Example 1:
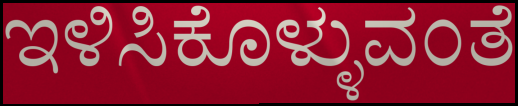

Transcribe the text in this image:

ಇಳಿಸಿಕೊಳ್ಳುವಂತೆ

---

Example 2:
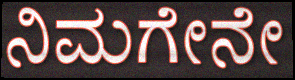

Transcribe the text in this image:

ನಿಮಗೇನೇ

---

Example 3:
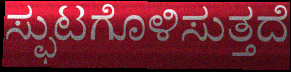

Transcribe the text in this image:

ಸ್ಫುಟಗೊಳಿಸುತ್ತದೆ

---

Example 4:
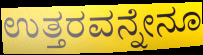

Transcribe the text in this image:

ಉತ್ತರವನ್ನೇನೂ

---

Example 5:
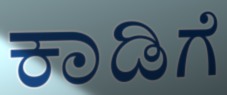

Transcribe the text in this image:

ಕಾಡಿಗೆ